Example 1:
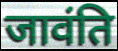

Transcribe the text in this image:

जावंति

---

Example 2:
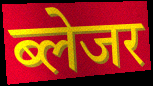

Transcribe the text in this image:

ब्लेजर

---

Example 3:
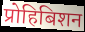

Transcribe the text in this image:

प्रोहिबिशन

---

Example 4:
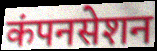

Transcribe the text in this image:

कंपनसेशन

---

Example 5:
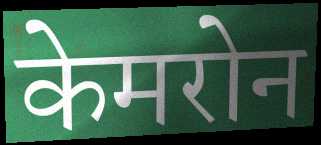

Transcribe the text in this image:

केमरोन